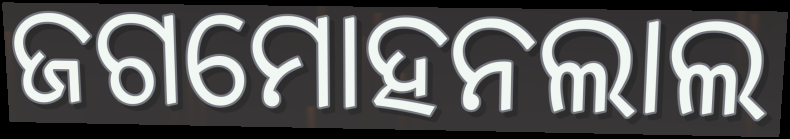
ଜଗମୋହନଲାଲ